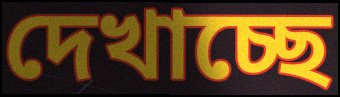
দেখাচ্ছে